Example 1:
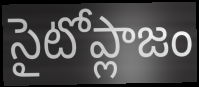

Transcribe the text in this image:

సైటోప్లాజం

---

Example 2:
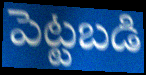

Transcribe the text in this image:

పెట్టబడి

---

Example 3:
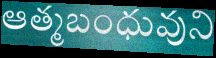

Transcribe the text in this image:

ఆత్మబంధువుని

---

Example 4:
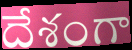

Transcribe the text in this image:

దేశంగా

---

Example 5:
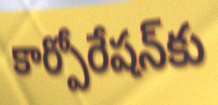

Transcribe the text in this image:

కార్పోరేషన్‌కు